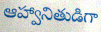
ఆహ్వానితుడిగా